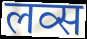
लव्स